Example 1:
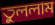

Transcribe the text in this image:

তুললাম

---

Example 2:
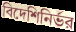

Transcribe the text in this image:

বিদেশিনির্ভর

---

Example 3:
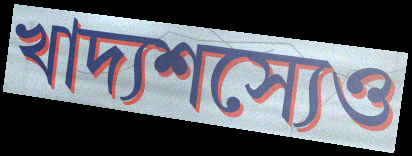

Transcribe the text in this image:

খাদ্যশস্যেও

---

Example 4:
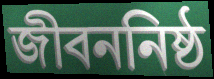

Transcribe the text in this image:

জীবননিষ্ঠ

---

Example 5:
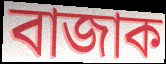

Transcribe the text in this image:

বাজাক